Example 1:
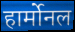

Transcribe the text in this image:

हार्मोनल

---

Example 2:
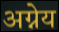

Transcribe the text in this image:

अग्नेय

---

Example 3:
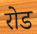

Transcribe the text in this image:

रोड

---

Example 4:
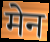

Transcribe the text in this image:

मेन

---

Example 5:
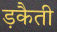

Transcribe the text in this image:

ड़कैती